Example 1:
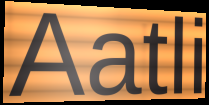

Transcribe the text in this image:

Aatli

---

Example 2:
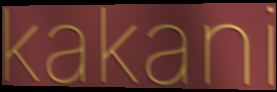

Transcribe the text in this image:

kakani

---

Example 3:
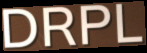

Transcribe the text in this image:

DRPL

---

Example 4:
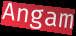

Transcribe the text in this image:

Angam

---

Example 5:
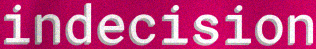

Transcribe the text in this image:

indecision